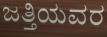
ಜತ್ತಿಯವರ